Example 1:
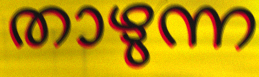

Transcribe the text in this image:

താഴുന്ന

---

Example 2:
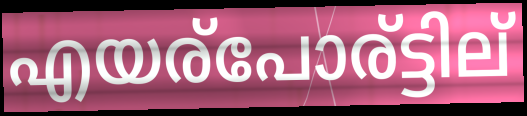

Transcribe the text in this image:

എയര്പോര്ട്ടില്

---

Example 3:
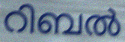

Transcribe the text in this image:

റിബൽ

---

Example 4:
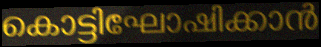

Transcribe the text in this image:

കൊട്ടിഘോഷിക്കാൻ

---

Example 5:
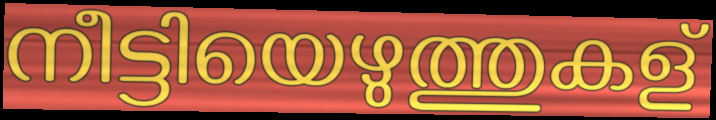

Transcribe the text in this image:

നീട്ടിയെഴുത്തുകള്